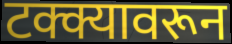
टक्क्यावरून